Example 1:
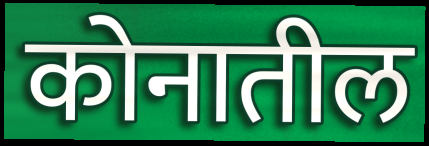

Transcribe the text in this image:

कोनातील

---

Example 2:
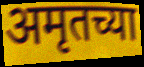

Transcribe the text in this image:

अमृतच्या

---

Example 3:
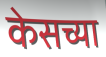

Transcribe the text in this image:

केसच्या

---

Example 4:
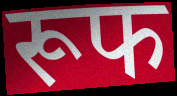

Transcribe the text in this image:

रूफ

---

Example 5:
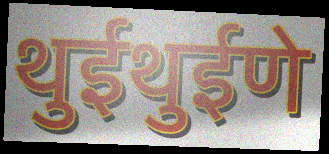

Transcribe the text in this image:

थुईथुईणे